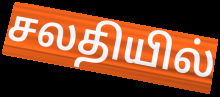
சலதியில்